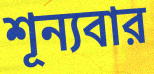
শূন্যবার